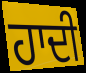
ਹਾਦੀ